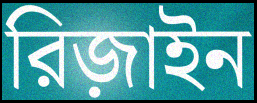
রিজ়াইন